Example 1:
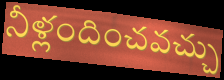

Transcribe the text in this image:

నీళ్లందించవచ్చు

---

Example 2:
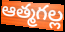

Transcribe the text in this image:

ఆత్మగల్ల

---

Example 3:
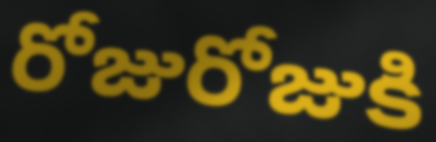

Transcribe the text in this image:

రోజురోజుకి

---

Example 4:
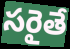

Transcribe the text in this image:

సరైతే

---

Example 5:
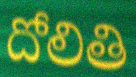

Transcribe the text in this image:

దోలితి